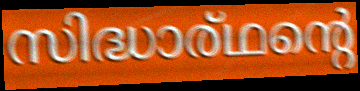
സിദ്ധാര്ഥന്റെ